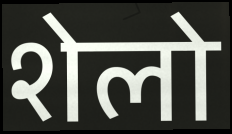
शेलो